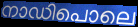
നാഡിപൊലെ